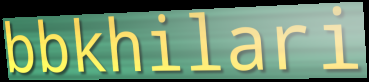
bbkhilari